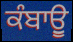
ਕੰਬਾਊੁ